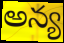
అన్య